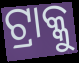
ଟ୍ରାକ୍କୁ